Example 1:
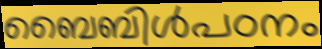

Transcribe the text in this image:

ബൈബിൾപഠനം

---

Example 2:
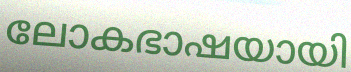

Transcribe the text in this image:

ലോകഭാഷയായി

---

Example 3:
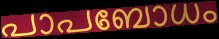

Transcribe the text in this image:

പാപബോധം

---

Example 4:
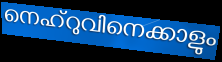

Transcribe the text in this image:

നെഹ്റുവിനെക്കാളും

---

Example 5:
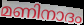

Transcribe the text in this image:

മണിനാദം